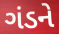
ગંડને